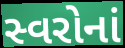
સ્વરોનાં